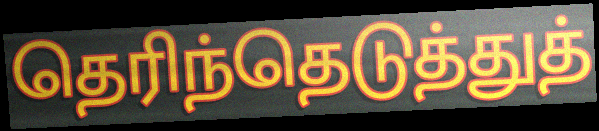
தெரிந்தெடுத்துத்